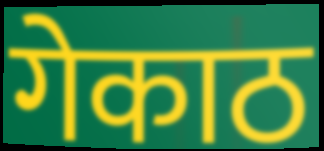
गेकाठ